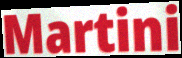
Martini